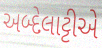
અબ્દેલાટ્ટીએ